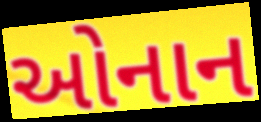
ઓનાન